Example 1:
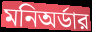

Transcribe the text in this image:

মনিঅর্ডার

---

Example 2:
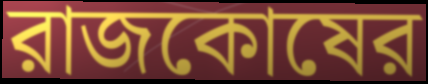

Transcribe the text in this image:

রাজকোষের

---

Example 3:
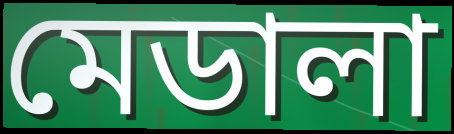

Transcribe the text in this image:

মেডালা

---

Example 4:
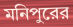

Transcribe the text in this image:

মনিপুরের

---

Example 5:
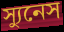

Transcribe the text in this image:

স্যুনেস